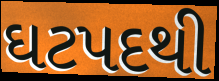
ઘટપદથી